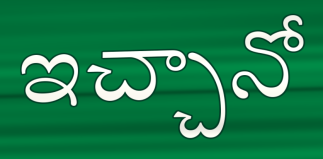
ఇచ్చానో